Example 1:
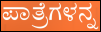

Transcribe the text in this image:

ಪಾತ್ರೆಗಳನ್ನ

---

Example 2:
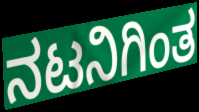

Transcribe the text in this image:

ನಟನಿಗಿಂತ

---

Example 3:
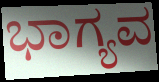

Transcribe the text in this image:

ಭಾಗ್ಯವ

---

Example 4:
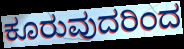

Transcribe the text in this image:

ಕೂರುವುದರಿಂದ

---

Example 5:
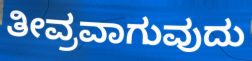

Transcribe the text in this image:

ತೀವ್ರವಾಗುವುದು